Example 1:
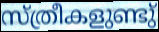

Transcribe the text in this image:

സ്ത്രീകളുണ്ടു്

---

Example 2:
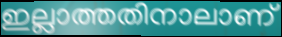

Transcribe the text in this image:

ഇല്ലാത്തതിനാലാണ്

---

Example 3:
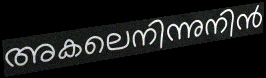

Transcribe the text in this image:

അകലെനിന്നുനിൻ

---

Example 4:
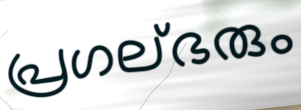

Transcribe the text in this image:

പ്രഗല്ഭരും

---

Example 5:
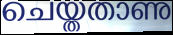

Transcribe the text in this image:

ചെയ്തതാണു